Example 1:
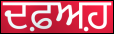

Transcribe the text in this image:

ਦਫ਼ਅ਼ਹ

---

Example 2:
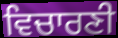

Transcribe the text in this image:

ਵਿਚਾਰਣੀ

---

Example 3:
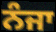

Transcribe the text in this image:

ਨੰਜਾ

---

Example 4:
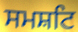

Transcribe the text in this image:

ਸਮਸ਼ਟਿ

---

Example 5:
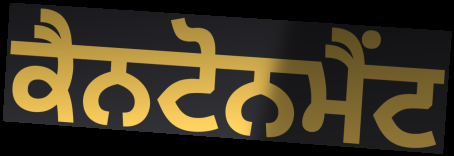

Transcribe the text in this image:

ਕੈਨਟੋਨਮੈਂਟ